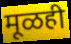
मूळही